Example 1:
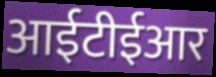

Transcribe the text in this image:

आईटीईआर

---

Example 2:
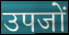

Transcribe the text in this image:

उपजों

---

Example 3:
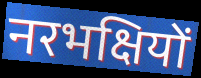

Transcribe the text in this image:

नरभक्षियों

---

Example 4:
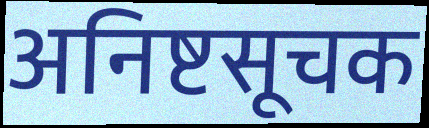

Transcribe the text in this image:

अनिष्टसूचक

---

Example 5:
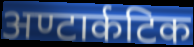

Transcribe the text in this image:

अण्टार्कटिक